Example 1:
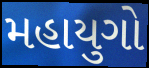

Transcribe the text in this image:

મહાયુગો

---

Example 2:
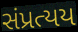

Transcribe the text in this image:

સંપ્રત્યય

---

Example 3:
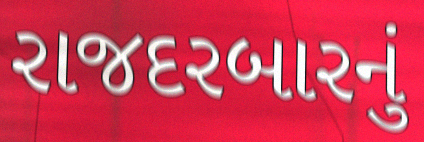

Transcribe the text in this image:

રાજદરબારનું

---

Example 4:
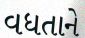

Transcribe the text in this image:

વધતાને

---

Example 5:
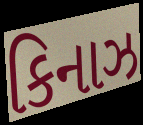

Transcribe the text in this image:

કિનાઝ